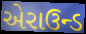
એરાઉન્ડ